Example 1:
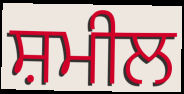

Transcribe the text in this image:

ਸ਼ਮੀਲ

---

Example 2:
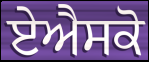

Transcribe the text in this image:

ਏਐਸਕੋ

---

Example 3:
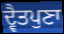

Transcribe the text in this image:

ਦ੍ਵੈਤਪੁਣਾ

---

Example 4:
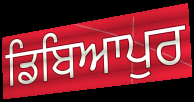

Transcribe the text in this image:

ਡਿਬਿਆਪੁਰ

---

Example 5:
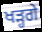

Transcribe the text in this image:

ਖੜ੍ਹਗੇ